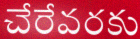
చేరేవరకు